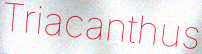
Triacanthus